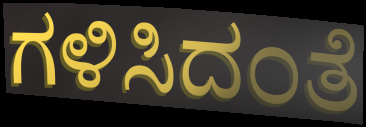
ಗಳಿಸಿದಂತೆ